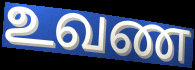
உவண